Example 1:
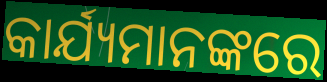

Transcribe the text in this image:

କାର୍ଯ୍ୟମାନଙ୍କରେ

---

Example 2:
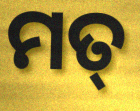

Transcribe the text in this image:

ମତ୍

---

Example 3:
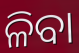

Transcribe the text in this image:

ଳିବା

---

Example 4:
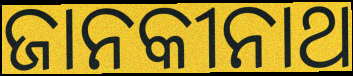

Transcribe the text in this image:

ଜାନକୀନାଥ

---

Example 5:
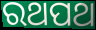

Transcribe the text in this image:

ରଥପଥ